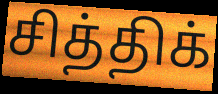
சித்திக்